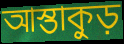
আস্তাকুড়